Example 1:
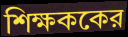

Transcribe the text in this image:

শিক্ষককের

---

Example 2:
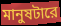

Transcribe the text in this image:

মানুষটারে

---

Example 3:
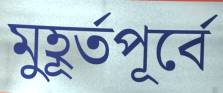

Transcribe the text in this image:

মুহূর্তপূর্বে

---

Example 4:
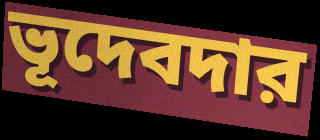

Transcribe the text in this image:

ভূদেবদার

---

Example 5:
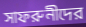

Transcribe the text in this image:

সাফরুনীদের